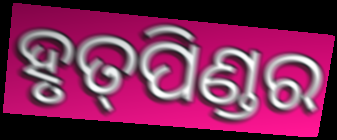
ହୃତ୍‌ପିଣ୍ଡର